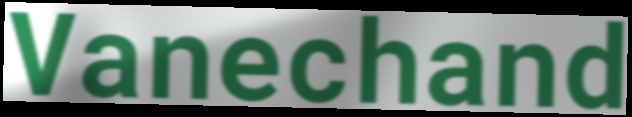
Vanechand